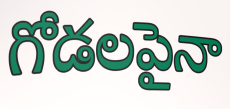
గోడలపైనా